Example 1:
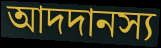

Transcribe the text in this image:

আদদানস্য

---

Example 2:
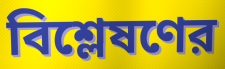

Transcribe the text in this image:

বিশ্লেষণের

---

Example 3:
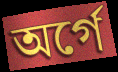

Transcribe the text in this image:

অর্গে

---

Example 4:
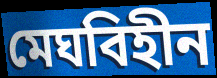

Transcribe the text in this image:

মেঘবিহীন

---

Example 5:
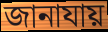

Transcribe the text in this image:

জানাযায়